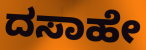
ದಸಾಹೇ